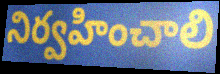
నిర్వహించాలి